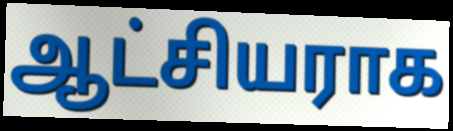
ஆட்சியராக